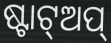
ଷ୍ଟାଟ୍ଅପ୍